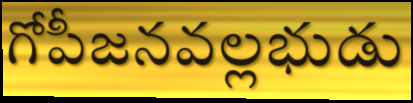
గోపీజనవల్లభుడు